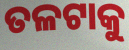
ତଳଟାକୁ